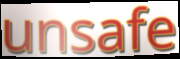
unsafe